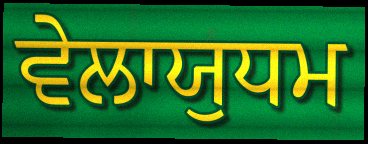
ਵੇਲਾਯੁਧਮ